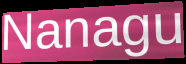
Nanagu